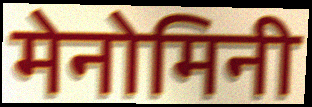
मेनोमिनी